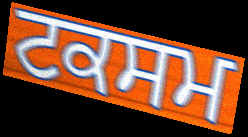
ਟਕਸਮ